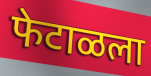
फेटाळला